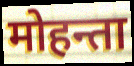
मोहन्ता